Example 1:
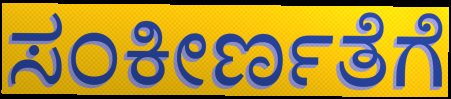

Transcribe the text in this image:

ಸಂಕೀರ್ಣತೆಗೆ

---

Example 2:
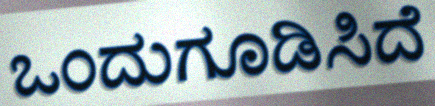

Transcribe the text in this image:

ಒಂದುಗೂಡಿಸಿದೆ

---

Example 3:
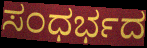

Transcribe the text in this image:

ಸಂಧರ್ಭದ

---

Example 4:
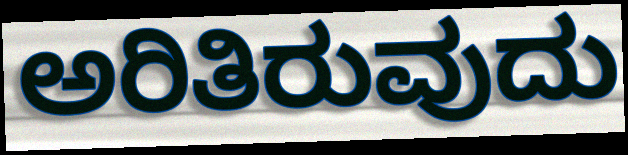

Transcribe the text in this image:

ಅರಿತಿರುವುದು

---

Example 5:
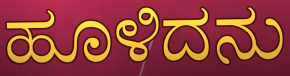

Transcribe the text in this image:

ಹೂಳಿದನು